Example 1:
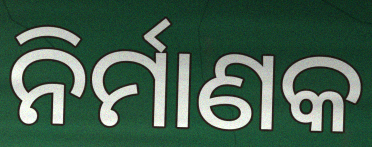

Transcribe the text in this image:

ନିର୍ମାଣକ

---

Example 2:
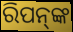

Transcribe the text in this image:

ରିପନ୍‍ଙ୍କ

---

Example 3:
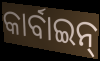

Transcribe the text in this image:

କାର୍ବାଇନ୍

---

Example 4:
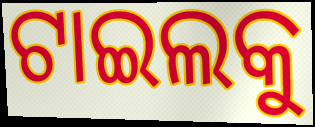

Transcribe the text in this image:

ଟାଇଲକୁ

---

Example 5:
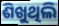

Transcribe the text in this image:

ଶିଖୁଥିଲି